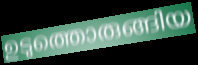
ഉടുത്തൊരുങ്ങിയ